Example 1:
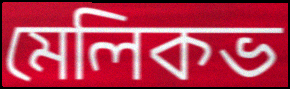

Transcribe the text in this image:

মেলিকভ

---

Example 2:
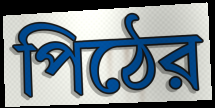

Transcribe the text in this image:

পিঠের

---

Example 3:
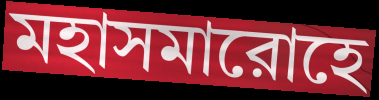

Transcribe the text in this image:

মহাসমারোহে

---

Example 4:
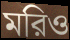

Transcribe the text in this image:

মরিও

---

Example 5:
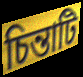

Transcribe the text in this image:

চিন্তাটি